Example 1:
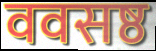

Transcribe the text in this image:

ववसष्ठ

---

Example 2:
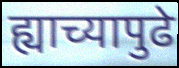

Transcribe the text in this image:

ह्याच्यापुढे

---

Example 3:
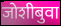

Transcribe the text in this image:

जोशीबुवा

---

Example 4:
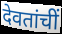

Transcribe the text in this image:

देवतांचीं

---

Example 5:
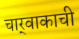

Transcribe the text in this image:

चार्वाकाची